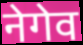
नेगेव